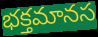
భక్తమానస